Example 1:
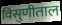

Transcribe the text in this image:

विसुणीताल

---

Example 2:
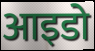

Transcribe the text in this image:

आइडो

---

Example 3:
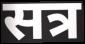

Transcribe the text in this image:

सत्र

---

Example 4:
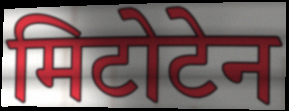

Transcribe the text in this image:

मिटोटेन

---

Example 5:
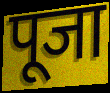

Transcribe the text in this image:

पूजा